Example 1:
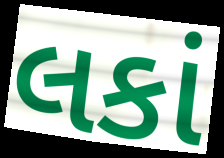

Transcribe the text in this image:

લકાં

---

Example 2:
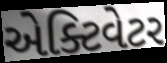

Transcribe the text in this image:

એક્ટિવેટર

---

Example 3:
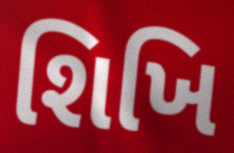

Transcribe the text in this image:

શિખિ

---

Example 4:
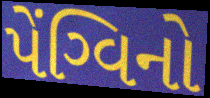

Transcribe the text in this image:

પેંગ્વિનો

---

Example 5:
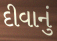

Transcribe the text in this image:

દીવાનું